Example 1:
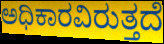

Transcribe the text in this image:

ಅಧಿಕಾರವಿರುತ್ತದೆ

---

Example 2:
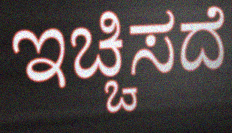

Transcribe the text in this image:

ಇಚ್ಚಿಸದೆ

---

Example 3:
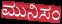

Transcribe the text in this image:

ಮುನಿಸಂ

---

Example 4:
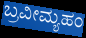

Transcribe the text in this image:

ಬ್ರವೀಮ್ಯಹಂ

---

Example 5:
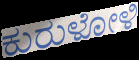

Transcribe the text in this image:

ಕುರುಳೋಳಿ